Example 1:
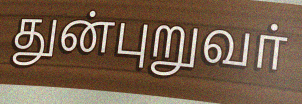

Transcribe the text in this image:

துன்புறுவர்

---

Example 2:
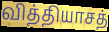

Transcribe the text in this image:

வித்தியாசத்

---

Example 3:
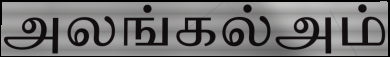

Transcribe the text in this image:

அலங்கல்அம்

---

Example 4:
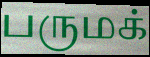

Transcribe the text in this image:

பருமக்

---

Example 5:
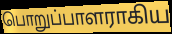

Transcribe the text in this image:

பொறுப்பாளராகிய